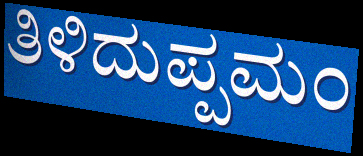
ತಿಳಿದುಪ್ಪಮಂ